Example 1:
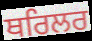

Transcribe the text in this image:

ਥਰਿਲਰ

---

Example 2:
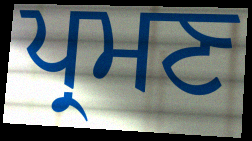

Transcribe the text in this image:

ਪ੍ਰਮਣ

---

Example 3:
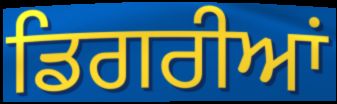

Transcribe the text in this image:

ਡਿਗਰੀਆਂ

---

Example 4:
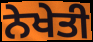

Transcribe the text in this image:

ਨੇਖੇਤੀ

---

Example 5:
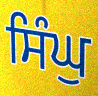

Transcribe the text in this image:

ਸਿੰਘੁ